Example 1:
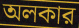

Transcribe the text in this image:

অলকার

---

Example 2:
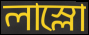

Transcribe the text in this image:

লাস্লো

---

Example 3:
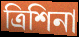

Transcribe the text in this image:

ত্রিশিনা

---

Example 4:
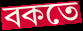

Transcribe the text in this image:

বকতে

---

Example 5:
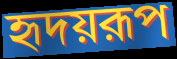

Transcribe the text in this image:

হৃদয়রূপ